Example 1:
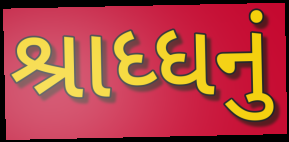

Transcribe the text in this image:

શ્રાધ્ધનું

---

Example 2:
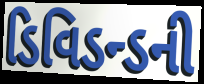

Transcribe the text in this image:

ડિવિડન્ડની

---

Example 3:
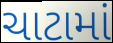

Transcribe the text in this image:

ચાટામાં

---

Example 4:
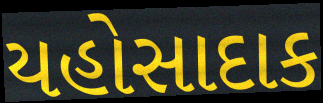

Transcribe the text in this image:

યહોસાદાક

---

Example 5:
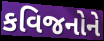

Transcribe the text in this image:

કવિજનોને